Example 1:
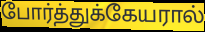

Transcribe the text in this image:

போர்த்துக்கேயரால்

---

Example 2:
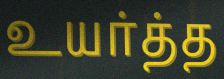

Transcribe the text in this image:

உயர்த்த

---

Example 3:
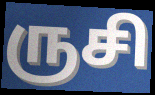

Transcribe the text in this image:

ருசி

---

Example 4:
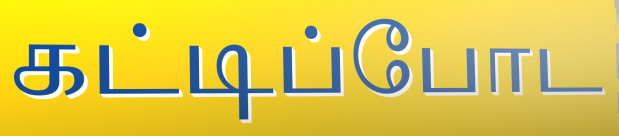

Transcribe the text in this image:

கட்டிப்போட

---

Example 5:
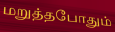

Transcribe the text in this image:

மறுத்தபோதும்